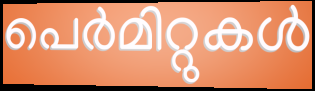
പെർമിറ്റുകൾ